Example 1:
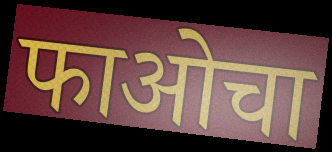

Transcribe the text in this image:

फाओचा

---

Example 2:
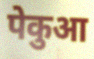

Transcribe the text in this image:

पेकुआ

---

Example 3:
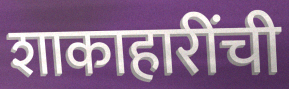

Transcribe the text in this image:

शाकाहारींची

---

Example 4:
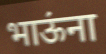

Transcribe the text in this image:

भाऊंना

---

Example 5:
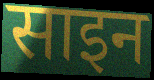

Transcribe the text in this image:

साइन